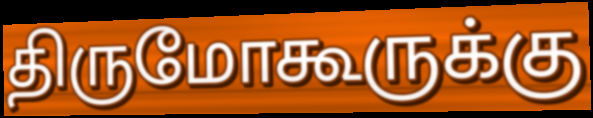
திருமோகூருக்கு